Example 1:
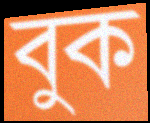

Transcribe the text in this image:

বুক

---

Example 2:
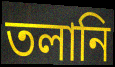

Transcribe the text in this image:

তলানি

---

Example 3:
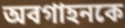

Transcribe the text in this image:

অবগাহনকে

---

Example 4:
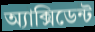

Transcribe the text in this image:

অ্যাক্সিডেন্ট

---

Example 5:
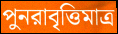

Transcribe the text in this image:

পুনরাবৃত্তিমাত্র